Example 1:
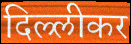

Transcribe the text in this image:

दिल्लीकर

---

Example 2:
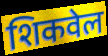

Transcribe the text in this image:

शिकवेल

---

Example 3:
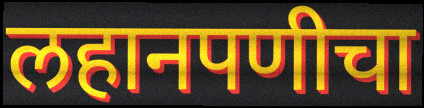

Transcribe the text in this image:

लहानपणीचा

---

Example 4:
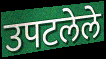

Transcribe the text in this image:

उपटलेले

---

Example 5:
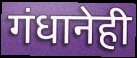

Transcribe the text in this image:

गंधानेही